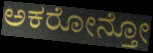
ಅಕರೋನ್ತೋ